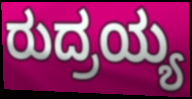
ರುದ್ರಯ್ಯ